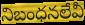
నిబంధనలేవీ